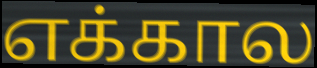
எக்கால